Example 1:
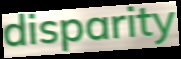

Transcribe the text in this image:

disparity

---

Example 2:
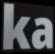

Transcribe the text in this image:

ka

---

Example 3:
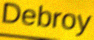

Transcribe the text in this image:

Debroy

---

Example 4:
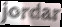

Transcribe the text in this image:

jordar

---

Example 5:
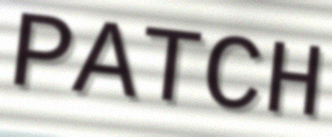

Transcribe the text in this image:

PATCH